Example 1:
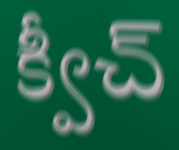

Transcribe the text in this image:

క్వీచ్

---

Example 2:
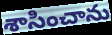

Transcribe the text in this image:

శాసించాను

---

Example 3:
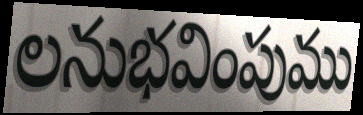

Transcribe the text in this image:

లనుభవింపుము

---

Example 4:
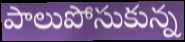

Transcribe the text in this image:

పాలుపోసుకున్న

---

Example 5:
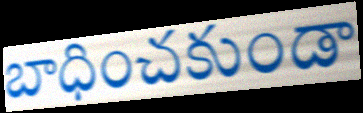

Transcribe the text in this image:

బాధించకుండా